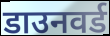
डाउनवर्ड